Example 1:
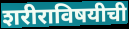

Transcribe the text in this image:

शरीराविषयीची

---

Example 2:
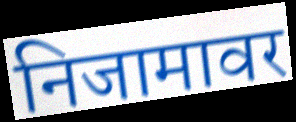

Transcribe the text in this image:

निजामावर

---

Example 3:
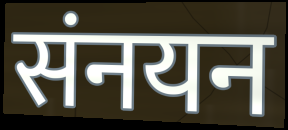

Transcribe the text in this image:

संनयन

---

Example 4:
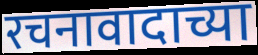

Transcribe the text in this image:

रचनावादाच्या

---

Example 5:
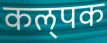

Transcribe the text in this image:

कल्पक